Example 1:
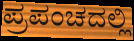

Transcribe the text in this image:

ಪ್ರಪಂಚದಲ್ಲಿ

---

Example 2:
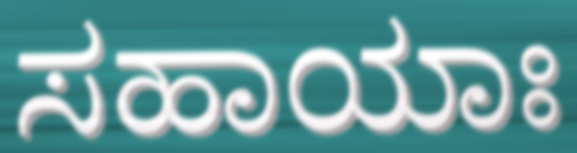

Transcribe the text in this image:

ಸಹಾಯಾಃ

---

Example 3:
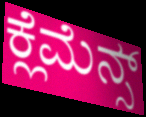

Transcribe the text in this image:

ಕ್ಲೆಮೆನ್ಸ್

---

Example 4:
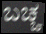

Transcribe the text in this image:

ಬಚ್ಚ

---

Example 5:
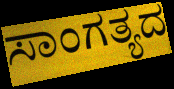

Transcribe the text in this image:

ಸಾಂಗತ್ಯದ